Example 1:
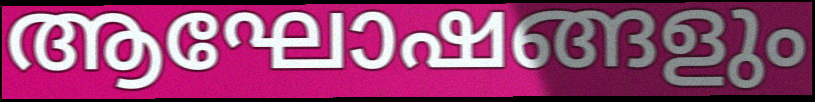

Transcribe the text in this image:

ആഘോഷങ്ങളും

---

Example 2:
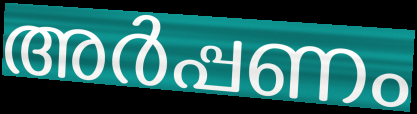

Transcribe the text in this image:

അർപ്പണം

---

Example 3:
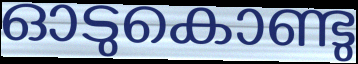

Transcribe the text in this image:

ഓടുകൊണ്ടു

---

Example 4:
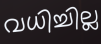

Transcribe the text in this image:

വധിച്ചില്ല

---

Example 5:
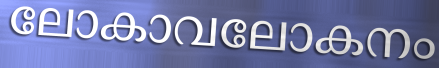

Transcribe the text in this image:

ലോകാവലോകനം